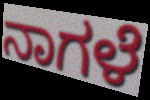
ನಾಗಳೆ